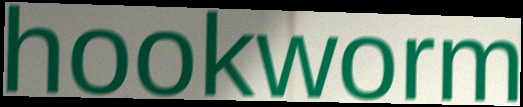
hookworm